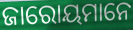
ଜାରୋୟମାନେ